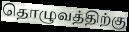
தொழுவத்திற்கு